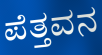
ಪೆತ್ತವನ